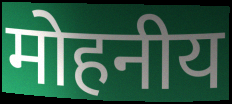
मोहनीय